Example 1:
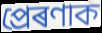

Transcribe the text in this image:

প্ৰেৰণাক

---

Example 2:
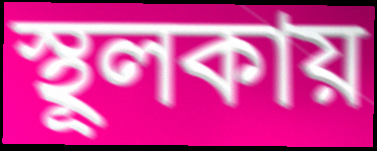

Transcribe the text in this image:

স্থূলকায়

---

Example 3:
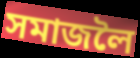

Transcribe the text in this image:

সমাজলৈ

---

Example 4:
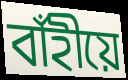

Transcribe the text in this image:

বাঁহীয়ে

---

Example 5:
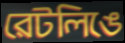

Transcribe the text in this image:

ৱেটলিঙে